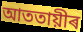
আততায়ীৰ